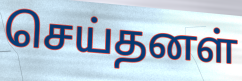
செய்தனள்